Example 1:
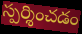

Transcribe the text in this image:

స్పర్శించడం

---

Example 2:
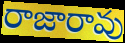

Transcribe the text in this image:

రాజారావు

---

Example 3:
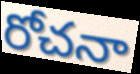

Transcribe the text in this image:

రోచనా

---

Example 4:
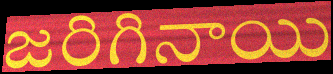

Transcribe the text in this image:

జరిగినాయి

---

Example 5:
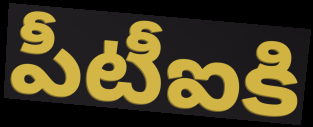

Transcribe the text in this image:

పీటీఐకి